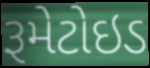
રૂમેટોઇડ